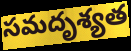
సమదృశ్యత